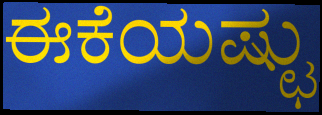
ಈಕೆಯಷ್ಟು